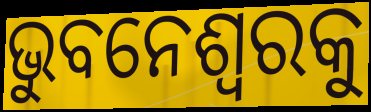
ଭୁବନେଶ୍ୱରକୁ